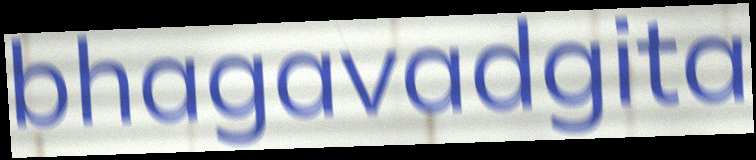
bhagavadgita